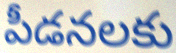
పీడనలకు